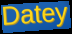
Datey